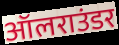
ऑलराउंडर